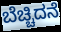
ಬೆಚ್ಚಿದನೆ